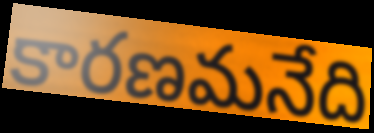
కారణమనేది